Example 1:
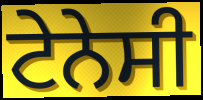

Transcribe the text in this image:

ਟੇਨੇਸੀ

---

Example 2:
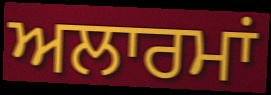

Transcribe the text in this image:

ਅਲਾਰਮਾਂ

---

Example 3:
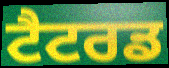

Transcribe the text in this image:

ਟੈਟਰਡ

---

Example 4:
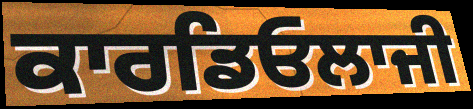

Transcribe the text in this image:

ਕਾਰਡਿਓਲਾਜੀ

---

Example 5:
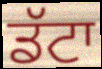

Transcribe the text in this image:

ਡੱਟਾ